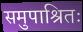
समुपाश्रितः